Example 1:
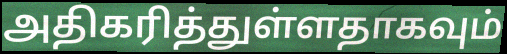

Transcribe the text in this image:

அதிகரித்துள்ளதாகவும்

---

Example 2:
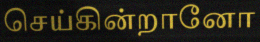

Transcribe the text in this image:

செய்கின்றானோ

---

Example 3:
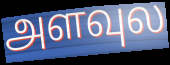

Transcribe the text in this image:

அளவுல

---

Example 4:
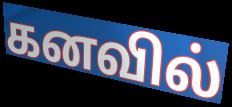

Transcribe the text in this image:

கனவில்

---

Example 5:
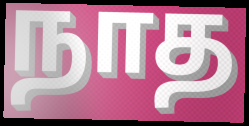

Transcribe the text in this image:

நாத